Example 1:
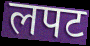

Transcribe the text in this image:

लपट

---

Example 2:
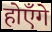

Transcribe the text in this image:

होएँगे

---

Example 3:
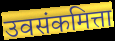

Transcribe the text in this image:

उवसंकमित्ता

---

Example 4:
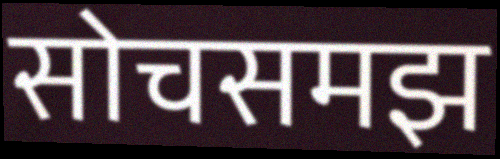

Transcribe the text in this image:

सोचसमझ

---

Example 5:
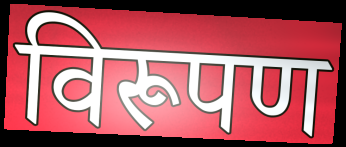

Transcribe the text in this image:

विरूपण